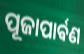
ପୂଜାପାର୍ଵଣ